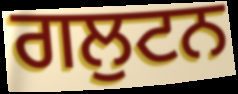
ਗਲੁਟਨ